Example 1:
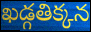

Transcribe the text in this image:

ఖడ్గతిక్కన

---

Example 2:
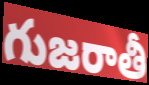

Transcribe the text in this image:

గుజరాతీ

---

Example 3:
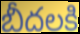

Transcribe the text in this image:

బీదలకి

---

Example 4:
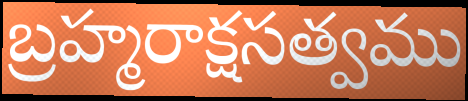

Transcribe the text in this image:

బ్రహ్మరాక్షసత్వము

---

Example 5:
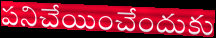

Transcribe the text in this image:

పనిచేయించేందుకు